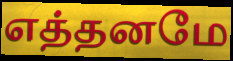
எத்தனமே